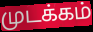
முடக்கம்